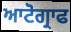
ਆਟੋਗ੍ਰਾਫ